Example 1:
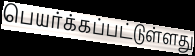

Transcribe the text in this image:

பெயர்க்கப்பட்டுள்ளது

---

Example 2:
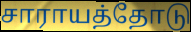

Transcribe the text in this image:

சாராயத்தோடு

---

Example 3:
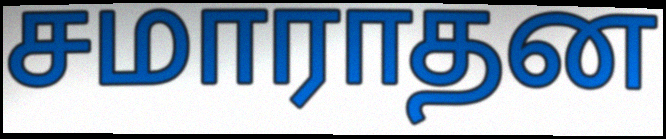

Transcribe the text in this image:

சமாராதன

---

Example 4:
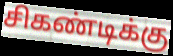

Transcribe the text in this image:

சிகண்டிக்கு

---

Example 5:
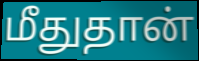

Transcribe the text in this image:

மீதுதான்